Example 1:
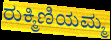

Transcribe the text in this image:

ರುಕ್ಮಿಣಿಯಮ್ಮ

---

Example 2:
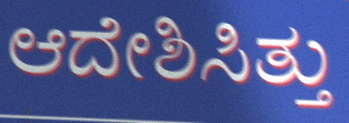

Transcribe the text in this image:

ಆದೇಶಿಸಿತ್ತು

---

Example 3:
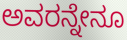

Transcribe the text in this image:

ಅವರನ್ನೇನೂ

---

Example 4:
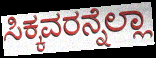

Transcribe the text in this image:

ಸಿಕ್ಕವರನ್ನೆಲ್ಲಾ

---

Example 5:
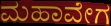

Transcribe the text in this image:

ಮಹಾವೇಗ